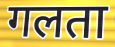
गलता